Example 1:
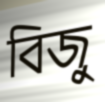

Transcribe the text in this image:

বিজু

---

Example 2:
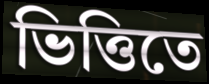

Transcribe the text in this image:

ভিত্তিতে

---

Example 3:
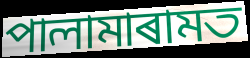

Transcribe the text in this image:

পালামাৰামত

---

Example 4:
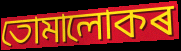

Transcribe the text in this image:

তোমালোকৰ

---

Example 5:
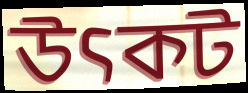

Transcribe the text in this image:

উৎকট